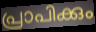
പ്രാപിക്കും